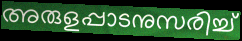
അരുളപ്പാടനുസരിച്ച്